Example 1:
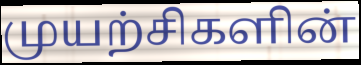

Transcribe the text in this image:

முயற்சிகளின்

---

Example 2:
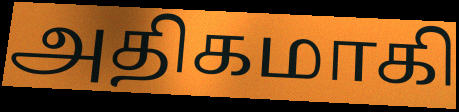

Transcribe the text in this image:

அதிகமாகி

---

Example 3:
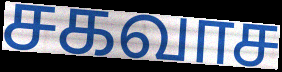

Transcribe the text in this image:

சகவாச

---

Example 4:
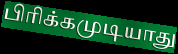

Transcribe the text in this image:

பிரிக்கமுடியாது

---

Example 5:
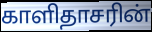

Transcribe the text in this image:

காளிதாசரின்